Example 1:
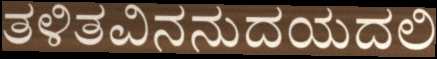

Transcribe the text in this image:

ತಳಿತವಿನನುದಯದಲಿ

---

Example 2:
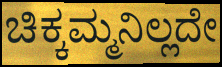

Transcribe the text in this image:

ಚಿಕ್ಕಮ್ಮನಿಲ್ಲದೇ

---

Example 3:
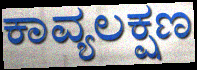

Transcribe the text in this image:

ಕಾವ್ಯಲಕ್ಷಣ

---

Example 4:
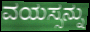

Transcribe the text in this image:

ವಯಸ್ಸನ್ನು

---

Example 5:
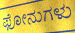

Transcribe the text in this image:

ಫೋನುಗಳು